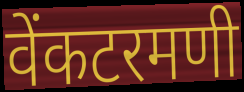
वेंकटरमणी